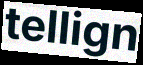
tellign